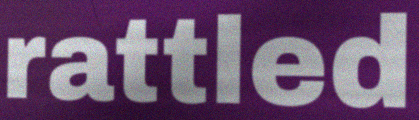
rattled